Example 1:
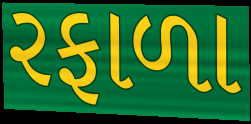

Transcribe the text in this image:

રફાળા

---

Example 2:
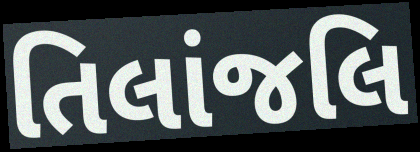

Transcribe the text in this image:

તિલાંજલિ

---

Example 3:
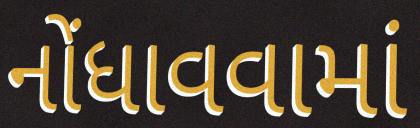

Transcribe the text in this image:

નોંધાવવામાં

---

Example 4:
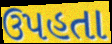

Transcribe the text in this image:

ઉપહતા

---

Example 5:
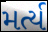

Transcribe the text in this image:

મર્ત્ય